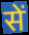
सें